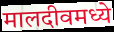
मालदीवमध्ये